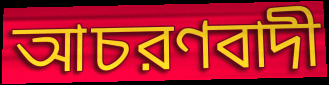
আচরণবাদী